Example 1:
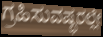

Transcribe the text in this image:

ಗ್ರಹಿಸುವಷ್ಟರಲ್ಲೇ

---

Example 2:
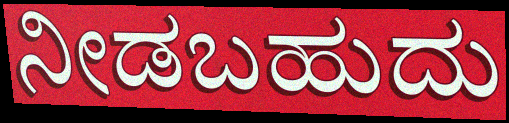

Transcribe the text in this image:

ನೀಡಬಹುದು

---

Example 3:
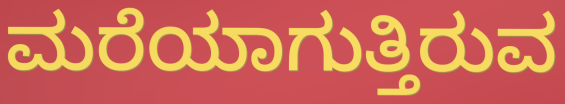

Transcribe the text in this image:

ಮರೆಯಾಗುತ್ತಿರುವ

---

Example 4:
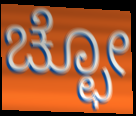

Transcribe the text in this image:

ಚ್ಛೋ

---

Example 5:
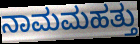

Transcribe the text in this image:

ನಾಮಮಹತ್ತು